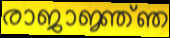
രാജാജ്ഞ്ഞ